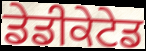
ਡੇਡੀਕੇਟੇਡ